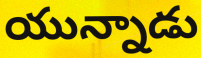
యున్నాడు